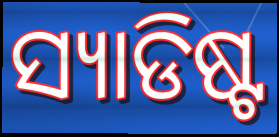
ସ୍ୟାଡିଷ୍ଟ